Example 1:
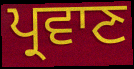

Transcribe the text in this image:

ਪ੍ਰਵਾਣ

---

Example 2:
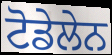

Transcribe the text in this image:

ਟੋਡੇਲੇਨ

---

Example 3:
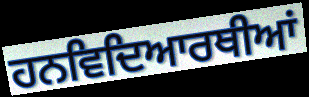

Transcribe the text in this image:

ਹਨਵਿਦਿਆਰਥੀਆਂ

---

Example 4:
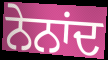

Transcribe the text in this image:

ਨੇਨਾਂਦ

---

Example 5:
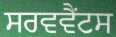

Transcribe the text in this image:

ਸਰਵਵੈਂਟਸ